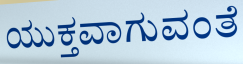
ಯುಕ್ತವಾಗುವಂತೆ